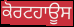
ਕੋਰਟਹਾਊਸ